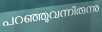
പറഞ്ഞുവന്നിരുന്നു